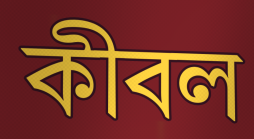
কীবল